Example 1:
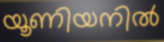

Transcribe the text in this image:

യൂണിയനിൽ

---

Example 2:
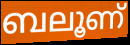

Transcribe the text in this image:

ബലൂണ്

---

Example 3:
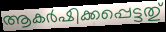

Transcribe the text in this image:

ആകർഷിക്കപ്പെട്ടതു്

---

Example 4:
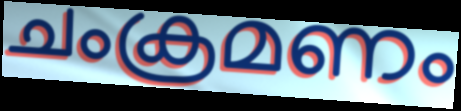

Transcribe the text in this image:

ചംക്രമണം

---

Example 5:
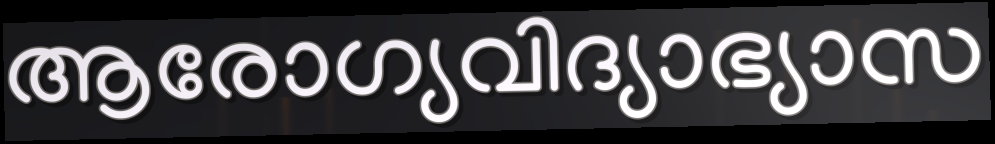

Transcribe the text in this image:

ആരോഗ്യവിദ്യാഭ്യാസ